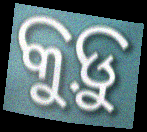
କୁଡ଼ୁ